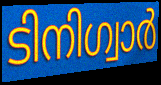
ടിനിഗ്വാർ